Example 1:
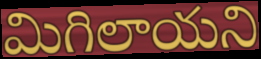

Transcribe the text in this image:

మిగిలాయని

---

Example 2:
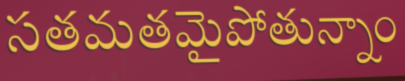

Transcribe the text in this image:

సతమతమైపోతున్నాం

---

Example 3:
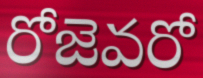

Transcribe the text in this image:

రోజెవరో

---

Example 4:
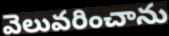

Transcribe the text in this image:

వెలువరించాను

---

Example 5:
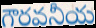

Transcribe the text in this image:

గౌరవనీయ